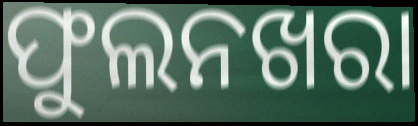
ଫୁଲନଖରା